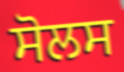
ਸੋਲਸ